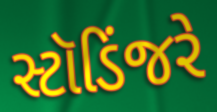
સ્ટૉડિંજરે